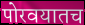
पोरवयातच